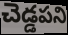
చెడ్డపని